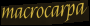
macrocarpa